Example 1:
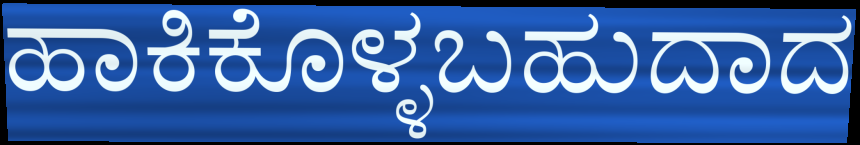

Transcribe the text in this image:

ಹಾಕಿಕೊಳ್ಳಬಹುದಾದ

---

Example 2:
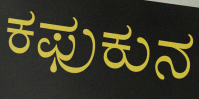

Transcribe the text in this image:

ಕಫುಕುನ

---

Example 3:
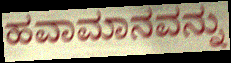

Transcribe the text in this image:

ಹವಾಮಾನವನ್ನು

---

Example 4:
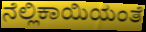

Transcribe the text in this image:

ನೆಲ್ಲಿಕಾಯಿಯಂತೆ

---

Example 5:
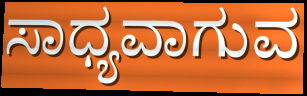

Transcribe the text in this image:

ಸಾಧ್ಯವಾಗುವ